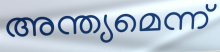
അന്ത്യമെന്ന്